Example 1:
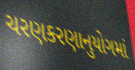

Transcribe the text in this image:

ચરણકરણાનુયોગમાં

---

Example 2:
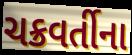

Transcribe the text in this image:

ચક્રવર્તીના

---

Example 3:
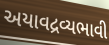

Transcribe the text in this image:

અયાવદ્રવ્યભાવી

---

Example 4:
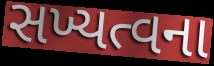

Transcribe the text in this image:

સખ્યત્વના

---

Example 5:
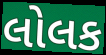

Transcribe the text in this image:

લોલક